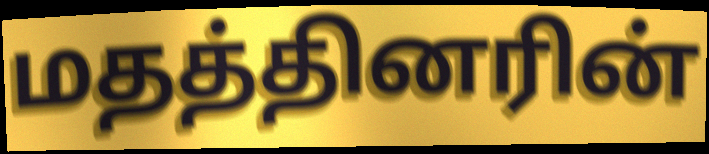
மதத்தினரின்